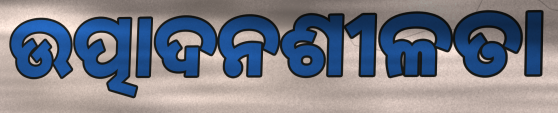
ଉତ୍ପାଦନଶୀଳତା